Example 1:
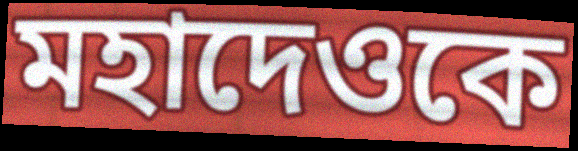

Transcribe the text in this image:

মহাদেওকে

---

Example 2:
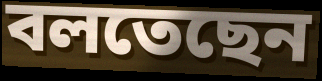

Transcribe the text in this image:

বলতেছেন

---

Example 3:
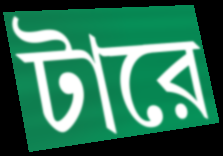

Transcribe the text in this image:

টারে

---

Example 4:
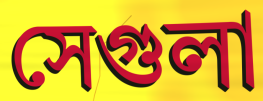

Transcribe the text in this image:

সেগুলা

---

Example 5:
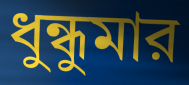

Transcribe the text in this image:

ধুন্ধুমার